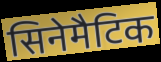
सिनेमैटिक